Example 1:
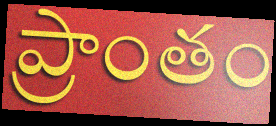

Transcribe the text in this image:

ప్రాంతం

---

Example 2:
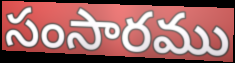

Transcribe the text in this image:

సంసారము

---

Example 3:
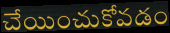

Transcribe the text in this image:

చేయించుకోవడం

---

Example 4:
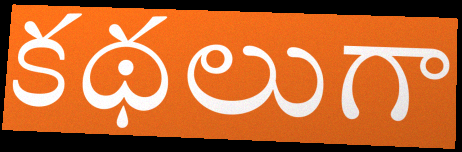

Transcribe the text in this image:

కథలుగా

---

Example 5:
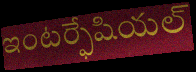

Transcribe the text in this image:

ఇంటర్ఫేషియల్